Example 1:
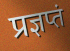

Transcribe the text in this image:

प्रज्ञप्तं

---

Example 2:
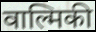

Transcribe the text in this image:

वाल्मिकी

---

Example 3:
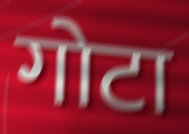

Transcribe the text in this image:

गोटा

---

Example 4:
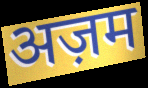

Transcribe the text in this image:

अज़म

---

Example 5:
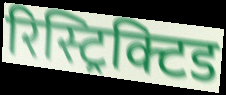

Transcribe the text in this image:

रिस्ट्रिक्टिड